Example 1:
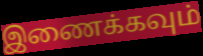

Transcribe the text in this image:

இணைக்கவும்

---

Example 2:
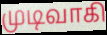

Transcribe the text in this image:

முடிவாகி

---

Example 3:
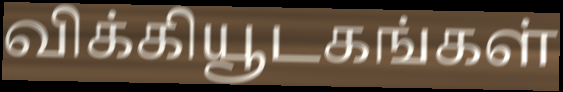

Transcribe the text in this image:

விக்கியூடகங்கள்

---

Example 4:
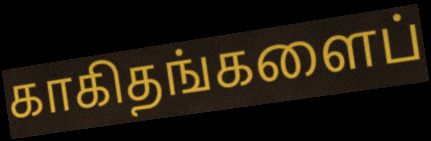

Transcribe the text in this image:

காகிதங்களைப்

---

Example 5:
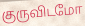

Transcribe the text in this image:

குருவிடமோ